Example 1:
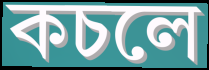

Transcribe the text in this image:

কচলে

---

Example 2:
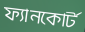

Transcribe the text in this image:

ফ্যানকোর্ট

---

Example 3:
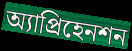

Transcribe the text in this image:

অ্যাপ্রিহেনশন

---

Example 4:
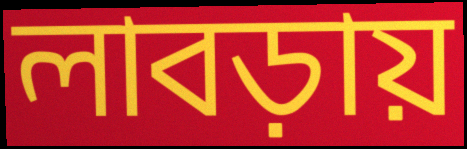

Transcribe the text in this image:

লাবড়ায়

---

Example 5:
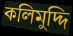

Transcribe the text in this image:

কলিমুদ্দি